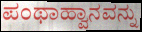
ಪಂಥಾಹ್ವಾನವನ್ನು